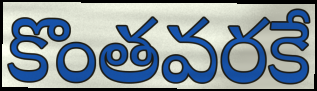
కొంతవరకే